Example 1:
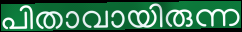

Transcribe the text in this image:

പിതാവായിരുന്ന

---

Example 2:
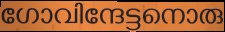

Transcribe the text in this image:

ഗോവിന്ദേട്ടനൊരു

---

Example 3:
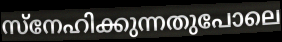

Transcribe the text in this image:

സ്നേഹിക്കുന്നതുപോലെ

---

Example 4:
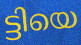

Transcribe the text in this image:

ട്ടിയെ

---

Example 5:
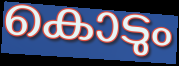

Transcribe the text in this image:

കൊടും